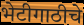
भेटीगाठीचे